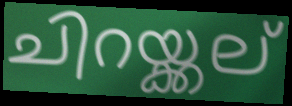
ചിറയ്ക്കല്